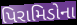
પિરામિડોના